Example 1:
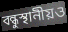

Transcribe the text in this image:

বন্ধুস্থানীয়ও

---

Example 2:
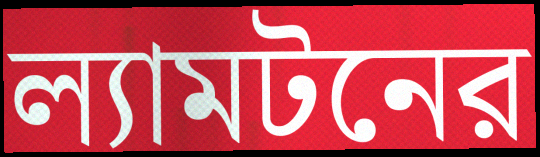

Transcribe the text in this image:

ল্যামটনের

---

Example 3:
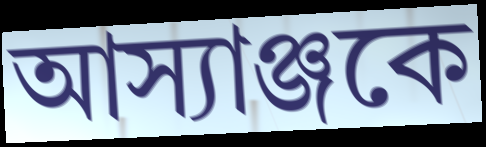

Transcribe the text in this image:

আস্যাঞ্জকে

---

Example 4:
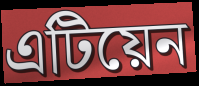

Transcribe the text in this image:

এটিয়েন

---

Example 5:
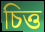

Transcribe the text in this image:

চিত্ত